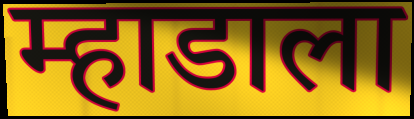
म्हाडाला